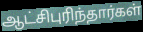
ஆட்சிபுரிந்தார்கள்